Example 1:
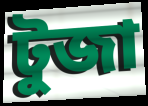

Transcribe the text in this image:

টুজা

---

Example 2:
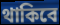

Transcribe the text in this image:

থাকিবে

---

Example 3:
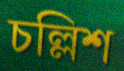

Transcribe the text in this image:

চল্লিশ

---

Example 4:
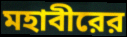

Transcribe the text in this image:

মহাবীরের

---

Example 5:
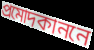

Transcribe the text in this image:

প্রমোদকাননে